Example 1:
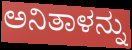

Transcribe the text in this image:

ಅನಿತಾಳನ್ನು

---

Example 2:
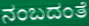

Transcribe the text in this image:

ನಂಬದಂತೆ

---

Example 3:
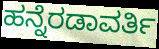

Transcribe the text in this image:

ಹನ್ನೆರಡಾವರ್ತಿ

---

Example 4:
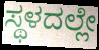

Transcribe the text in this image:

ಸ್ಥಳದಲ್ಲೇ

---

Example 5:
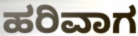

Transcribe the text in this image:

ಹರಿವಾಗ